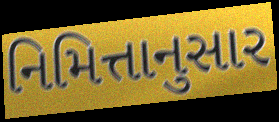
નિમિત્તાનુસાર